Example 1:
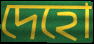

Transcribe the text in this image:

দেহো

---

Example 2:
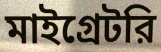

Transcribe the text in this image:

মাইগ্রেটরি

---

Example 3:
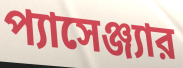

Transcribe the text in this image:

প্যাসেঞ্জ্যার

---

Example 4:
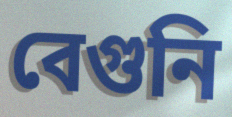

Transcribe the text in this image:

বেগুনি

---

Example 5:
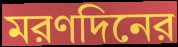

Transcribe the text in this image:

মরণদিনের